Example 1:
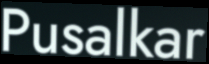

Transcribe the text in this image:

Pusalkar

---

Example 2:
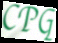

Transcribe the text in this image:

CPG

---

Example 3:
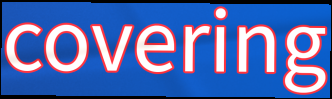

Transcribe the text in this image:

covering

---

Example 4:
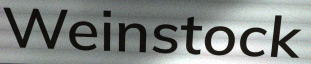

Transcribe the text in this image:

Weinstock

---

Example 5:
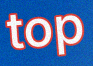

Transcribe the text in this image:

top